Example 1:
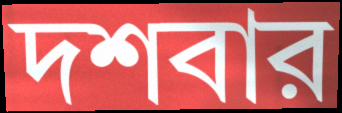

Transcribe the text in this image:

দশবার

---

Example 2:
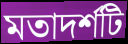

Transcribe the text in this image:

মতাদর্শটি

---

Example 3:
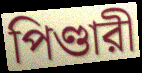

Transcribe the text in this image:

পিণ্ডারী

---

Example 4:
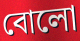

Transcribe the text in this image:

বোলো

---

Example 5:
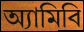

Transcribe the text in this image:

অ্যামিবি